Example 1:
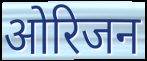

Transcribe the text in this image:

ओरिजन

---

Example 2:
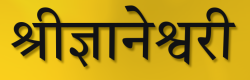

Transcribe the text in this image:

श्रीज्ञानेश्वरी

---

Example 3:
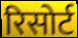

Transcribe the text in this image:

रिसोर्ट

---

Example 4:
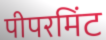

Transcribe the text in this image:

पीपरमिंट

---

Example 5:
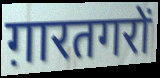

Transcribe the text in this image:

ग़ारतगरों